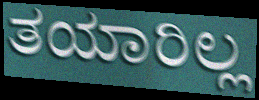
ತಯಾರಿಲ್ಲ